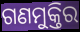
ଗଣମୁକ୍ତିର